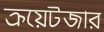
ক্রয়েটজার